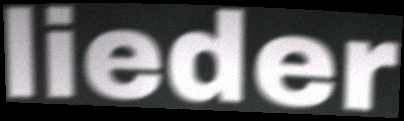
lieder